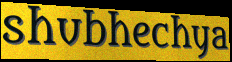
shubhechya